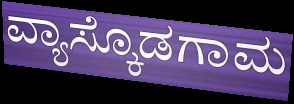
ವ್ಯಾಸ್ಕೊಡಗಾಮ